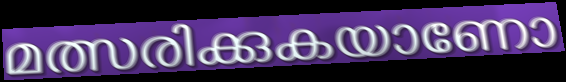
മത്സരിക്കുകയാണോ